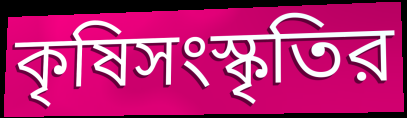
কৃষিসংস্কৃতির